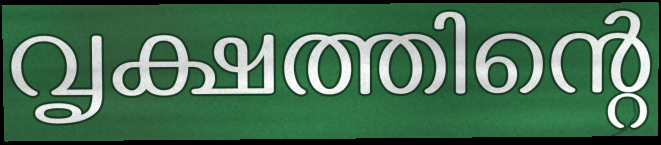
വൃക്ഷത്തിന്റെ